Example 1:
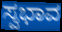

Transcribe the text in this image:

ಸ್ವಭಾವ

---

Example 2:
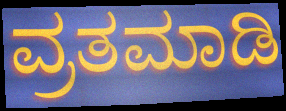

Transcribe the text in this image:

ವ್ರತಮಾಡಿ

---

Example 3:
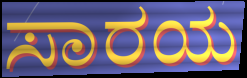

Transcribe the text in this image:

ಸಾರಯ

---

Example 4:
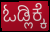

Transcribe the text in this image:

ಓಡ್ಲಿಕ್ಕೆ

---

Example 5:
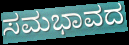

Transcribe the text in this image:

ಸಮಭಾವದ